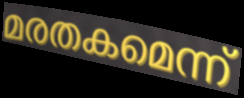
മരതകമെന്ന്